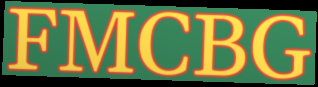
FMCBG